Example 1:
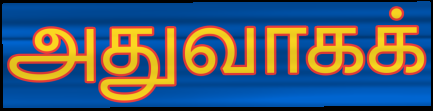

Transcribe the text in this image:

அதுவாகக்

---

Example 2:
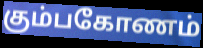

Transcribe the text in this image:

கும்பகோணம்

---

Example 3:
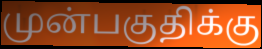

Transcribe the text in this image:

முன்பகுதிக்கு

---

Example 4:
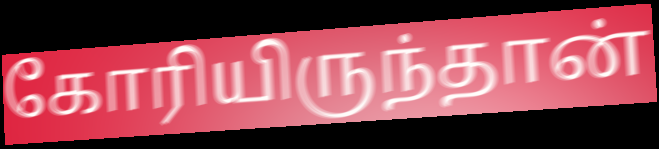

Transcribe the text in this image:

கோரியிருந்தான்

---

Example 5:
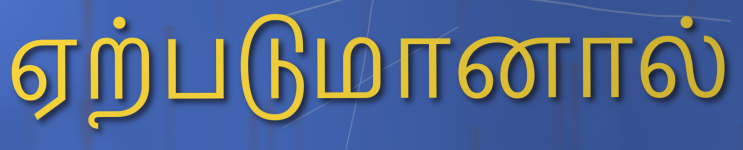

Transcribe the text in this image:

ஏற்படுமானால்